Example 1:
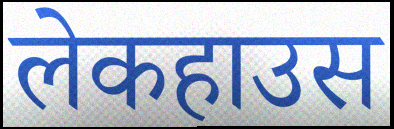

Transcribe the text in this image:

लेकहाउस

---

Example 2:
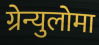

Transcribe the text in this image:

ग्रेन्युलोमा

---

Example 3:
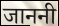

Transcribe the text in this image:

जाननी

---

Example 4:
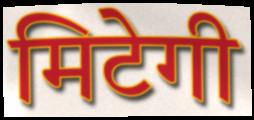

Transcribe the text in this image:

मिटेगी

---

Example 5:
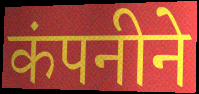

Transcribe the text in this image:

कंपनीने